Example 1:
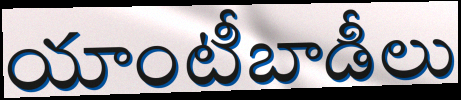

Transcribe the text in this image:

యాంటీబాడీలు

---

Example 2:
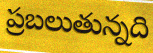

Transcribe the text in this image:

ప్రబలుతున్నది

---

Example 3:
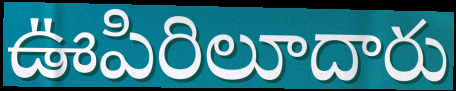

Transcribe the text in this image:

ఊపిరిలూదారు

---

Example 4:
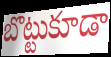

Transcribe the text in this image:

బొట్టుకూడా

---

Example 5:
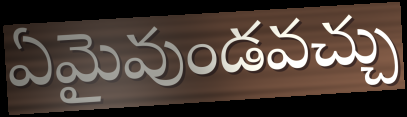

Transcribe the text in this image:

ఏమైవుండవచ్చు